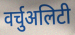
वर्चुअलिटी